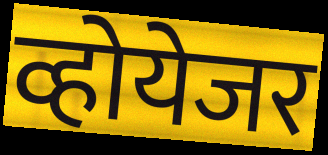
व्होयेजर